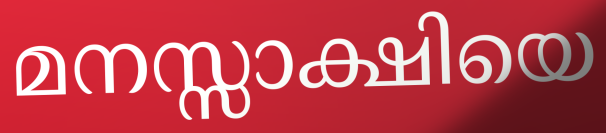
മനസ്സാക്ഷിയെ